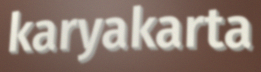
karyakarta